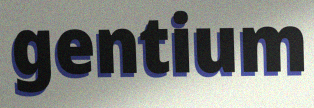
gentium